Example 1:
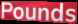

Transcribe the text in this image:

Pounds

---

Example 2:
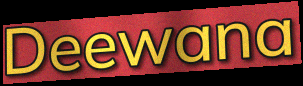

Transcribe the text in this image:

Deewana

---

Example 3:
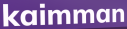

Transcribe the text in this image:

kaimman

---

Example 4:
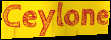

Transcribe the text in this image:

Ceylone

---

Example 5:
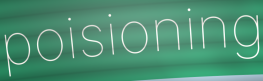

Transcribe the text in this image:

poisioning